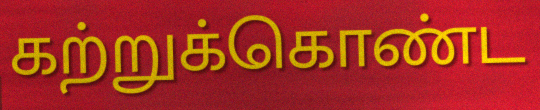
கற்றுக்கொண்ட